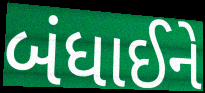
બંધાઈને